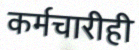
कर्मचारीही